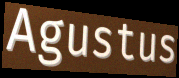
Agustus